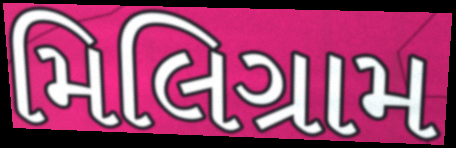
મિલિગ્રામ